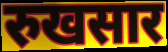
रुखसार